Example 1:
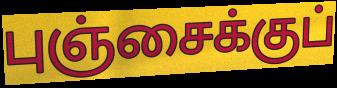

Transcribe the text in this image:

புஞ்சைக்குப்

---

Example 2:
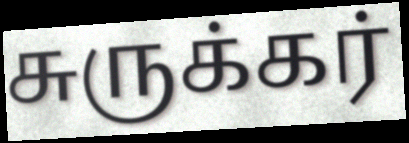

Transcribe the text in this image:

சுருக்கர்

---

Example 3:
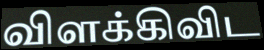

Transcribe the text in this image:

விளக்கிவிட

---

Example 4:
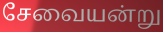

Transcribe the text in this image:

சேவையன்று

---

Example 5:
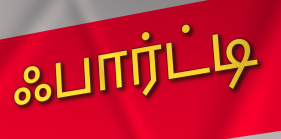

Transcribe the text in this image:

ஃபார்ட்டி